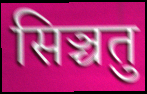
सिञ्चतु